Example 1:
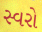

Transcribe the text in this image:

સ્વરો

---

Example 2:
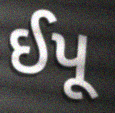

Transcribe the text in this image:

ઈપૂ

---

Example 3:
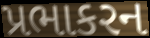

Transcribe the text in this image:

પ્રભાકરન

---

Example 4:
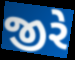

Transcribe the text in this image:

જીરે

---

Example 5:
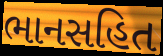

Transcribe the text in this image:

ભાનસહિત